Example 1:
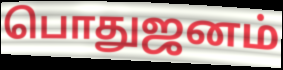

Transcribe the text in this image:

பொதுஜனம்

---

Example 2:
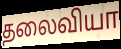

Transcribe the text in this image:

தலைவியா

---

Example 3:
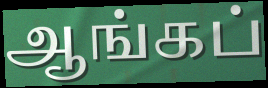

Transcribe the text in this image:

ஆங்கப்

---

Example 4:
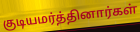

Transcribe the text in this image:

குடியமர்த்தினார்கள்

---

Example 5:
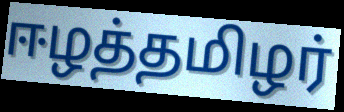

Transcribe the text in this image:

ஈழத்தமிழர்